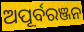
ଅପୂର୍ବରଞ୍ଜନ